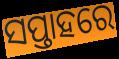
ସପ୍ତାହରେ